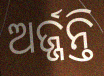
ଅର୍ଜ୍ଜନ୍ତି